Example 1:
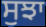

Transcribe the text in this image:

ਸੁਝਾ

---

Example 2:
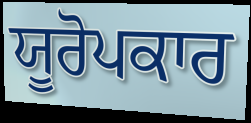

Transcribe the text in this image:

ਯੂਰੋਪਕਾਰ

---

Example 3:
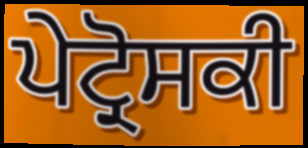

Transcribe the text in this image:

ਪੇਟ੍ਰੋਸਕੀ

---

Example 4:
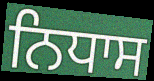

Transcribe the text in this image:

ਨਿਧਾਸ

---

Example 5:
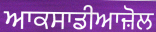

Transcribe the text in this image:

ਆਕਸਾਡੀਆਜ਼ੋਲ